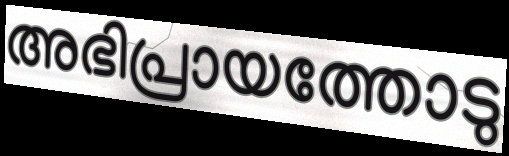
അഭിപ്രായത്തോടു